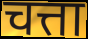
चत्ता